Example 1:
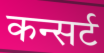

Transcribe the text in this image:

कन्सर्ट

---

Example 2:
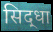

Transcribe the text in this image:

सिद्धा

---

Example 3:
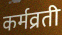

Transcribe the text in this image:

कर्मव्रती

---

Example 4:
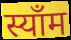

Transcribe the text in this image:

स्याँम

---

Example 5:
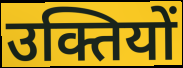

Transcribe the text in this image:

उक्तियों